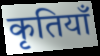
कृतियाँ